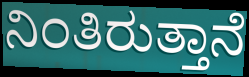
ನಿಂತಿರುತ್ತಾನೆ